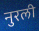
नुरली